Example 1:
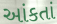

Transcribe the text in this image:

આંકતાં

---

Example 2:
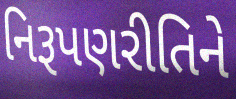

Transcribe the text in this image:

નિરૂપણરીતિને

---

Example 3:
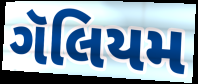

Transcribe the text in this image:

ગૅલિયમ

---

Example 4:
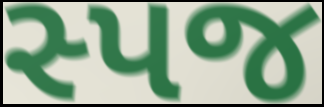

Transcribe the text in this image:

સ્પજ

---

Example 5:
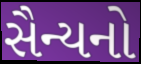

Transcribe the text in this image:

સૈન્યનો